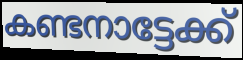
കണ്ടനാട്ടേക്ക്